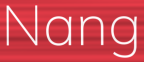
Nang